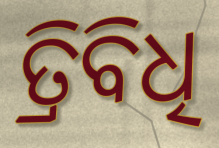
ତ୍ରିବିଧି